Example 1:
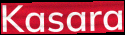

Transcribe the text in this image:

Kasara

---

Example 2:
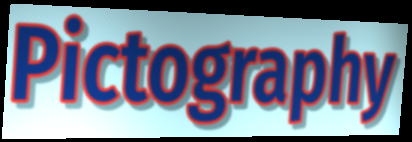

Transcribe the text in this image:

Pictography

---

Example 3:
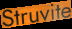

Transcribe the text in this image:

Struvite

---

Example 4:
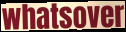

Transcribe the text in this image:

whatsover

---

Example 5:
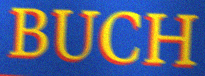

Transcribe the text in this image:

BUCH